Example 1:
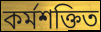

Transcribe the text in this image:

কৰ্মশক্তিত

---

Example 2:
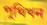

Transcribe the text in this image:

পুথিখন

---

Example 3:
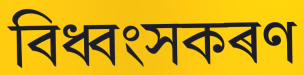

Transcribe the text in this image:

বিধ্বংসকৰণ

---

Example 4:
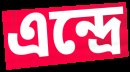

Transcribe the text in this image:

এন্দ্ৰে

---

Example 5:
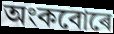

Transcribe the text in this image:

অংকবোৰে